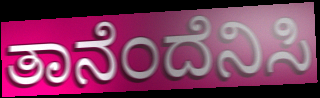
ತಾನೆಂದೆನಿಸಿ